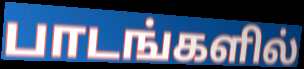
பாடங்களில்